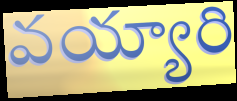
వయ్యారి